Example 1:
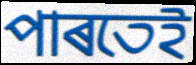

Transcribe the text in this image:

পাৰতেই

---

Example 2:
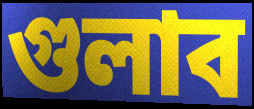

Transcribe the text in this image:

গুলাব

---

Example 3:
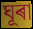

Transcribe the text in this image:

ঘূৰা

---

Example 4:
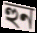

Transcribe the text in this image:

হুন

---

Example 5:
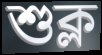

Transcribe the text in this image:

শুক্ল